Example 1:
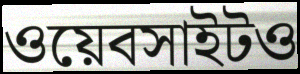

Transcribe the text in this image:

ওয়েবসাইটও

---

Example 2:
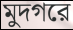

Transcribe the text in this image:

মুদগরে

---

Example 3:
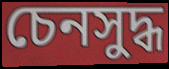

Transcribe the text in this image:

চেনসুদ্ধ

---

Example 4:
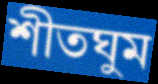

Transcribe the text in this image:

শীতঘুম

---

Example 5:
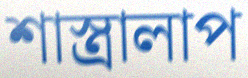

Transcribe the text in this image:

শাস্ত্রালাপ